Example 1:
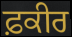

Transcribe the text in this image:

ਫ਼ਕੀਰ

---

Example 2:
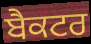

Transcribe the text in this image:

ਬੈਕਟਰ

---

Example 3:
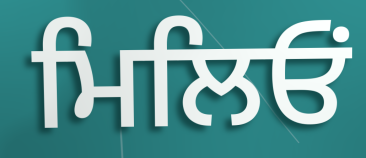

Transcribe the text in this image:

ਮਿਲਿਓਂ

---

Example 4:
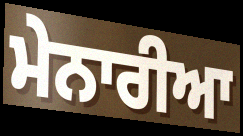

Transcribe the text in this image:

ਮੇਨਾਰੀਆ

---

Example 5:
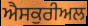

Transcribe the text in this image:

ਐਸਕੁਰੀਅਲ